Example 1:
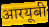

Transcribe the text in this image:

आरयूबी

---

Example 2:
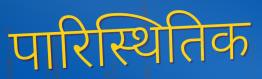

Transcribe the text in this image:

पारिस्थितिक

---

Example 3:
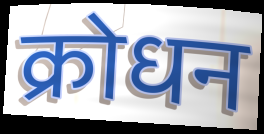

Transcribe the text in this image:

क्रोधन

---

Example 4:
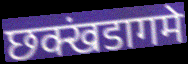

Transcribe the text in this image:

छक्खंडागमे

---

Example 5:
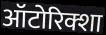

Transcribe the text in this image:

ऑटोरिक्‍शा